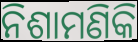
ନିଶାମଣିକି